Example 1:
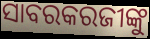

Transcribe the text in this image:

ସାବରକରଜୀଙ୍କୁ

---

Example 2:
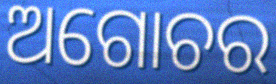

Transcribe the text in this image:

ଅଗୋଚର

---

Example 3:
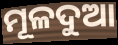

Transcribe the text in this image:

ମୂଳଦୁଆ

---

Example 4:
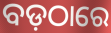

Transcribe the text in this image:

ବଡ଼ଠାରେ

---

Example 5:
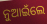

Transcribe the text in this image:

ନୁଆଇଁଲେ